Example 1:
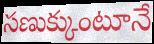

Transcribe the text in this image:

సణుక్కుంటూనే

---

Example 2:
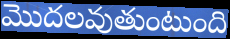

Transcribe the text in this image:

మొదలవుతుంటుంది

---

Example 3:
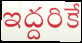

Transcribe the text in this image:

ఇద్దరికే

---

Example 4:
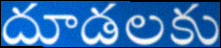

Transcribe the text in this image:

దూడలకు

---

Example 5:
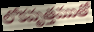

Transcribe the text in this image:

లోకవృత్తముతో